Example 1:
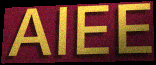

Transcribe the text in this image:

AIEE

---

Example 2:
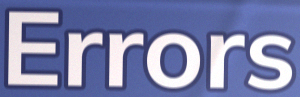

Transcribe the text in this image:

Errors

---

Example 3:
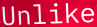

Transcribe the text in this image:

Unlike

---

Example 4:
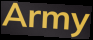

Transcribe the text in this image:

Army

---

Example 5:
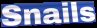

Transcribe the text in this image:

Snails